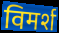
विमर्श